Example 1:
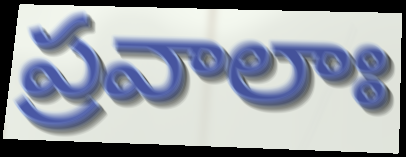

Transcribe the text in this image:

ప్రవాలాః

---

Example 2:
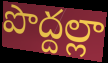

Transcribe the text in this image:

పొద్దల్లా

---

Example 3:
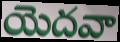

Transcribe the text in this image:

యెదవా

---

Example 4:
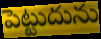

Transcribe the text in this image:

పెట్టుదును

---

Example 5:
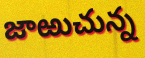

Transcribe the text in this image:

జాఱుచున్న